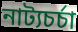
নাট্যচর্চা